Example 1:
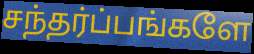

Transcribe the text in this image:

சந்தர்ப்பங்களே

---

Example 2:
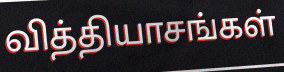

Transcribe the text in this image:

வித்தியாசங்கள்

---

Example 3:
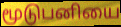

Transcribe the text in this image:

மூடுபனியை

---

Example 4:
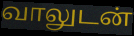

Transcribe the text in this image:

வாலுடன்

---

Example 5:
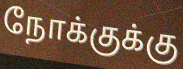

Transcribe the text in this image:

நோக்குக்கு